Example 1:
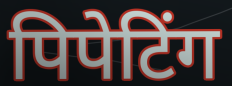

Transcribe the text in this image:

पिपेटिंग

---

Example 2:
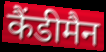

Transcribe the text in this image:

कैंडीमैन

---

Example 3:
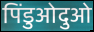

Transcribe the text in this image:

पिंडुओदुओ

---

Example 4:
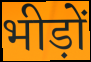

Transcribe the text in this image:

भीड़ों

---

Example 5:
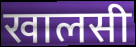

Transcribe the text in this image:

खालसी